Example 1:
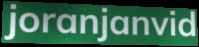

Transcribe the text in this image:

joranjanvid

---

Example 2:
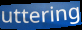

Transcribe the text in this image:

uttering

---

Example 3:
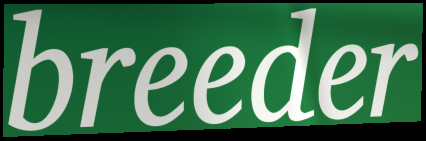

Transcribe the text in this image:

breeder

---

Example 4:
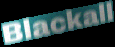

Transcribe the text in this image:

Blackall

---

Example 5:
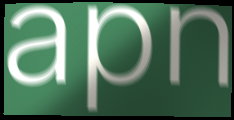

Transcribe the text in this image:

apn